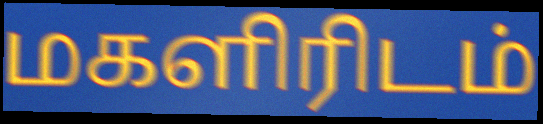
மகளிரிடம்